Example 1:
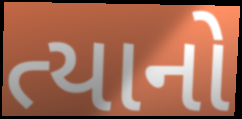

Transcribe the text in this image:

ત્યાનો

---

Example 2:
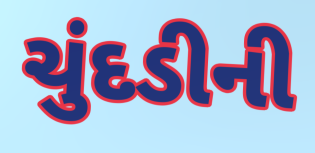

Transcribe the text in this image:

ચુંદડીની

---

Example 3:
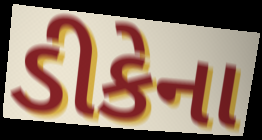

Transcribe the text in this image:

ડીકેના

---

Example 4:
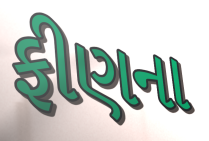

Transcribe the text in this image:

ફીણના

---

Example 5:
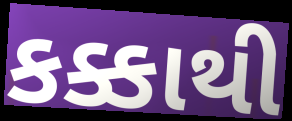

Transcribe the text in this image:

કક્કાથી